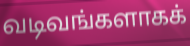
வடிவங்களாகக்